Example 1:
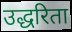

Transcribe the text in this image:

उद्धरिता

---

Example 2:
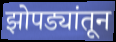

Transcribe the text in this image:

झोपड्यांतून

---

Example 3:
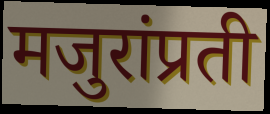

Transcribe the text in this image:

मजुरांप्रती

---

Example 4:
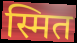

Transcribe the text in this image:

स्मित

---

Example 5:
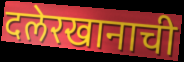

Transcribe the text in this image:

दलेरखानाची